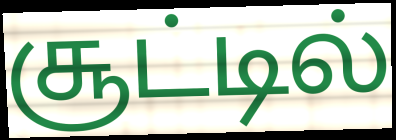
சூட்டில்